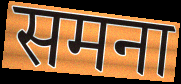
समना